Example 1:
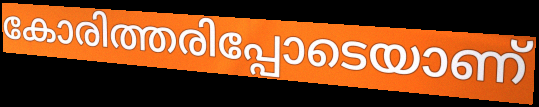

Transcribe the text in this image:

കോരിത്തരിപ്പോടെയാണ്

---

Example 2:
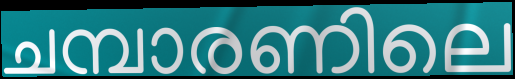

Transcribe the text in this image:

ചമ്പാരണിലെ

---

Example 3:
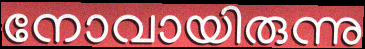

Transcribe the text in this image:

നോവായിരുന്നു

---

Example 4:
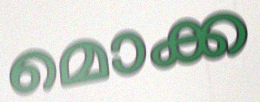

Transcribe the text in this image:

മൊക്ക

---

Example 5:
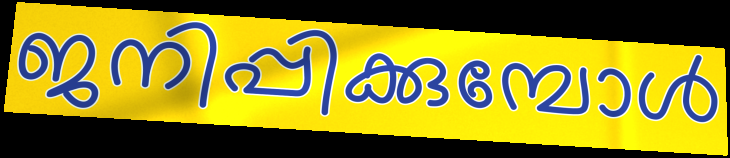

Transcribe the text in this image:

ജനിപ്പിക്കുമ്പോൾ